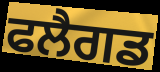
ਫਲੈਗਡ